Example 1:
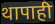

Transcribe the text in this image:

थापाही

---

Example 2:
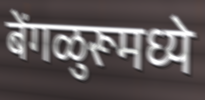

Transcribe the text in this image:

बेंगळुरूमध्ये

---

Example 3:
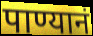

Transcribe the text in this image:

पाण्यानं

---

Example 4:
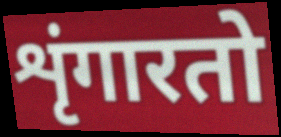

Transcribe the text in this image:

शृंगारतो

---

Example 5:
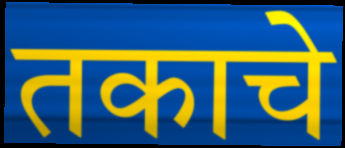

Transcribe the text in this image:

तकाचे